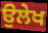
ਉਲੇਖ